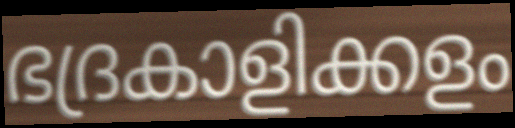
ഭദ്രകാളിക്കളം